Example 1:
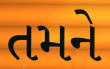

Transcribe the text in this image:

તમને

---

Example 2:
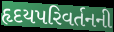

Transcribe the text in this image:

હૃદયપરિવર્તનની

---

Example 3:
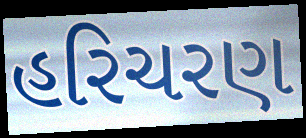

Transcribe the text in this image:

હરિચરણ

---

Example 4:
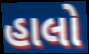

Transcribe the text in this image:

હાલો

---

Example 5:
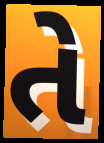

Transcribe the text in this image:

તે